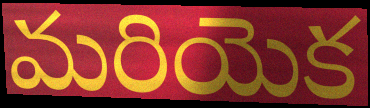
మరియెక